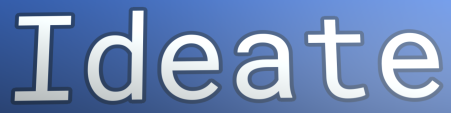
Ideate